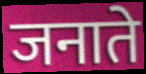
जनाते